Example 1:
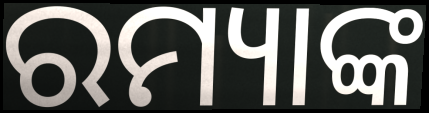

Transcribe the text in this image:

ରମ୍ୟାଙ୍କ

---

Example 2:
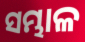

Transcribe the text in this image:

ସମ୍ଭାଳ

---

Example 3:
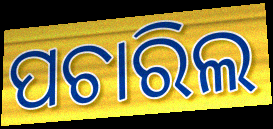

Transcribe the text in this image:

ପଚାରିଲ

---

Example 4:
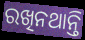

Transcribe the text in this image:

ରଖିନଥାନ୍ତି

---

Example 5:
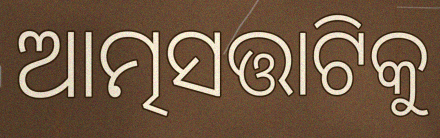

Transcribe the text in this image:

ଆତ୍ମସତ୍ତାଟିକୁ